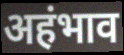
अहंभाव